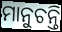
ମାନୁଚନ୍ତି